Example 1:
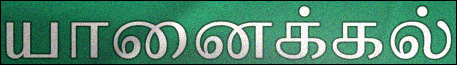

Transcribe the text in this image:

யானைக்கல்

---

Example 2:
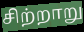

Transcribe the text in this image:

சிற்றாறு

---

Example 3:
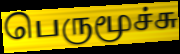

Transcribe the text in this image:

பெருமூச்சு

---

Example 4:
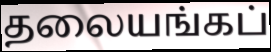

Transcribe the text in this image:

தலையங்கப்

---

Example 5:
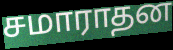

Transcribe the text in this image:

சமாராதன